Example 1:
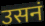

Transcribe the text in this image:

उसनं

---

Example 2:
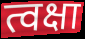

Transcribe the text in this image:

त्वक्षा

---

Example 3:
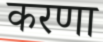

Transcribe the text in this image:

करणा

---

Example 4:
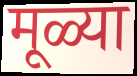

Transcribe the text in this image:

मूळ्या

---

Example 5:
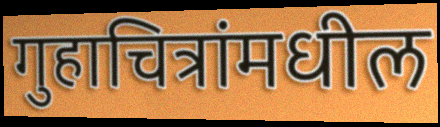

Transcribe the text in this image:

गुहाचित्रांमधील